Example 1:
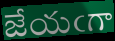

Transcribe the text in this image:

జేయఁగా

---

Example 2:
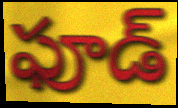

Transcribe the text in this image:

ఫూడ్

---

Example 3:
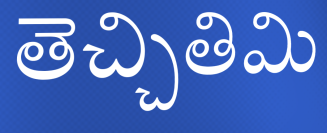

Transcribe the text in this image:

తెచ్చితిమి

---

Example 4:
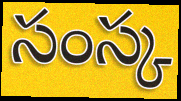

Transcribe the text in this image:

సంస్క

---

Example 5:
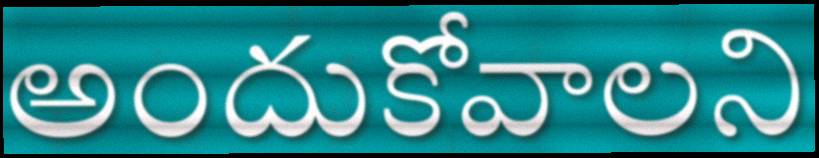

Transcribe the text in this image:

అందుకోవాలని